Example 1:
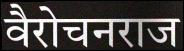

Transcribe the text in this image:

वैरोचनराज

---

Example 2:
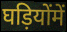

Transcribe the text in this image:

घड़ियोंमें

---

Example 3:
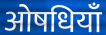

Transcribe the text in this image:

ओषधियाँ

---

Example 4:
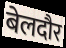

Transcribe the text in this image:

बेलदौर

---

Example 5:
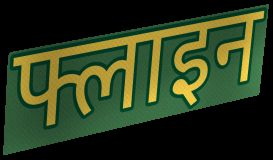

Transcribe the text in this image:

फ्लाइन